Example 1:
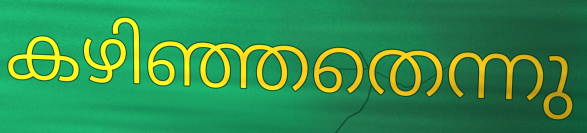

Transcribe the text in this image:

കഴിഞ്ഞതെന്നു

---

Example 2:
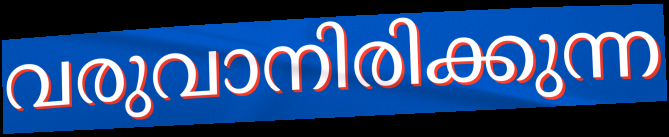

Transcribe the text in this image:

വരുവാനിരിക്കുന്ന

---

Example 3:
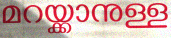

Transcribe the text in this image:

മറയ്ക്കാനുള്ള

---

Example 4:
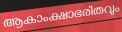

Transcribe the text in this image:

ആകാംക്ഷാഭരിതവും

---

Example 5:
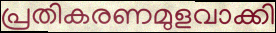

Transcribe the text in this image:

പ്രതികരണമുളവാക്കി